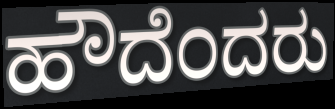
ಹೌದೆಂದರು